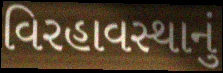
વિરહાવસ્થાનું